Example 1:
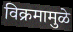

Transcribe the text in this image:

विक्रमामुळे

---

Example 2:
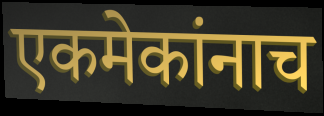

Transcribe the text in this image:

एकमेकांनाच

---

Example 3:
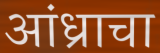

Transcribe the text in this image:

आंध्राचा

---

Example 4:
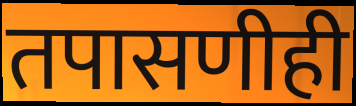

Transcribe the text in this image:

तपासणीही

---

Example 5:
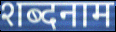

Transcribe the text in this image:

शब्दनाम